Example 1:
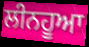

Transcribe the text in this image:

ਲੀਨਹੂਆ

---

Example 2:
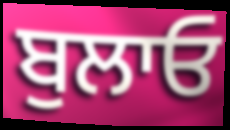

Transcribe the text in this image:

ਬੁਲਾਓ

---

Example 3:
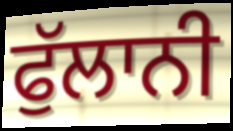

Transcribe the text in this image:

ਫੁੱਲਾਨੀ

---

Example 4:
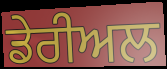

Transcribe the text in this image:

ਡੇਰੀਅਲ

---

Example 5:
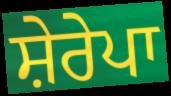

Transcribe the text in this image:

ਸ਼ੇਰੇਪਾ